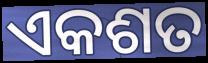
ଏକଶତ